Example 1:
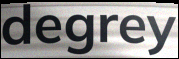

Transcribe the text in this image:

degrey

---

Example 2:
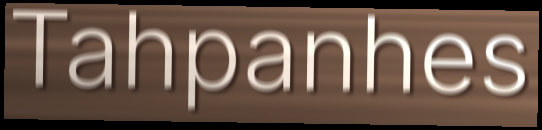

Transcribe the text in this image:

Tahpanhes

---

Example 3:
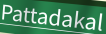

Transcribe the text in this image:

Pattadakal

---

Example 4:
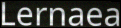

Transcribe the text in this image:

Lernaea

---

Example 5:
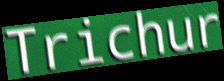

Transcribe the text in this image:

Trichur